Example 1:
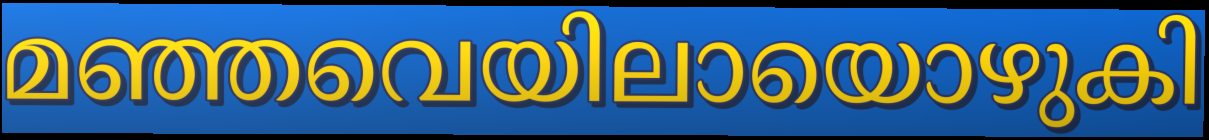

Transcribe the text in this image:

മഞ്ഞവെയിലായൊഴുകി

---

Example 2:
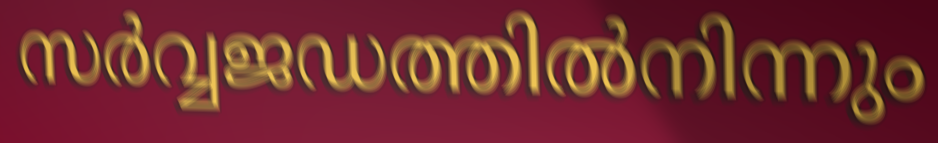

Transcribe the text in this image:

സർവ്വജഡത്തിൽനിന്നും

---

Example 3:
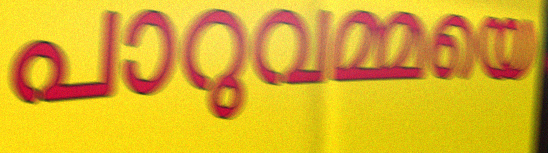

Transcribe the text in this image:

പാറുവമ്മയെ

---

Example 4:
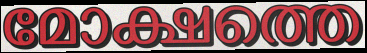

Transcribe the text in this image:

മോക്ഷത്തെ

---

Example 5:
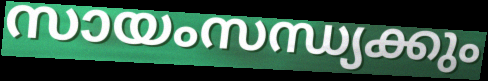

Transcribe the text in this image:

സായംസന്ധ്യക്കും